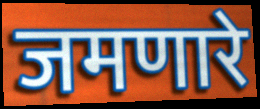
जमणारे